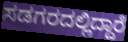
ಸಡಗರದಲ್ಲಿದ್ದಾರೆ